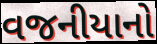
વજનીયાનો